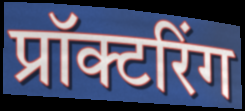
प्रॉक्टरिंग